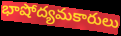
భాషోద్యమకారులు